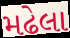
મઢેલા